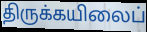
திருக்கயிலைப்